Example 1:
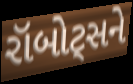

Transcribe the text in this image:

રૉબોટ્સને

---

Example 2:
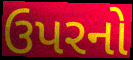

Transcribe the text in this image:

ઉપરનો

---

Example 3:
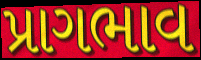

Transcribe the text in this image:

પ્રાગભાવ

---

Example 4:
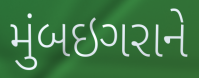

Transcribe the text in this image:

મુંબઇગરાને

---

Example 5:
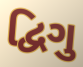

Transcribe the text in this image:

દ્વિગુ